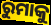
ରୁମାକୁ